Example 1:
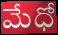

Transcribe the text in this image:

మేధో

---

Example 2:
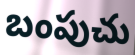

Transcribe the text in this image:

బంపుచు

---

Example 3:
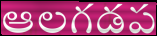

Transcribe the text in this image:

ఆలగడప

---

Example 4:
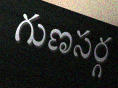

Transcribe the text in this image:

గుణసర్గ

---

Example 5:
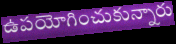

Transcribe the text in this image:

ఉపయోగించుకున్నారు